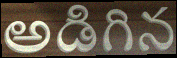
అడిగిన